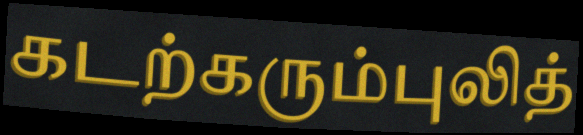
கடற்கரும்புலித்